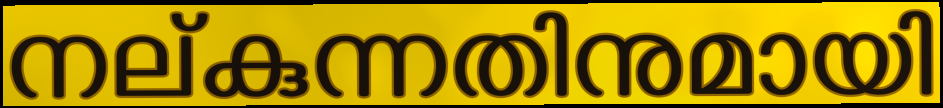
നല്‌കുന്നതിനുമായി